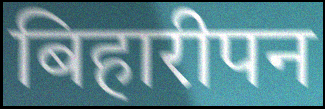
बिहारीपन